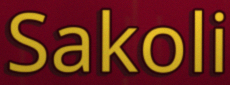
Sakoli